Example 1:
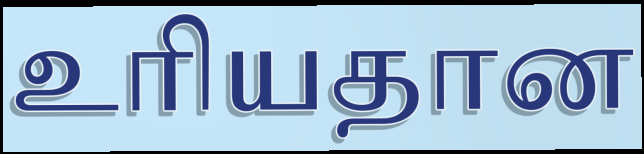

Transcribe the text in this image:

உரியதான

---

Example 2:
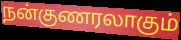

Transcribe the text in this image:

நன்குணரலாகும்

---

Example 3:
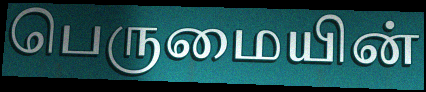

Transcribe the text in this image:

பெருமையின்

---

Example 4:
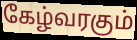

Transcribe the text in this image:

கேழ்வரகும்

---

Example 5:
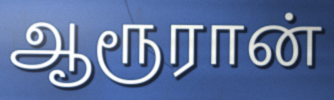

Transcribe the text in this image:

ஆரூரான்